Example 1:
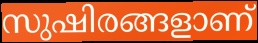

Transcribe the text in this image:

സുഷിരങ്ങളാണ്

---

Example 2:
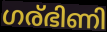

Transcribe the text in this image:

ഗര്ഭിണി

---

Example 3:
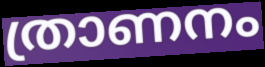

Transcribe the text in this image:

ത്രാണനം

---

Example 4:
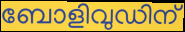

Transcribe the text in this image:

ബോളിവുഡിന്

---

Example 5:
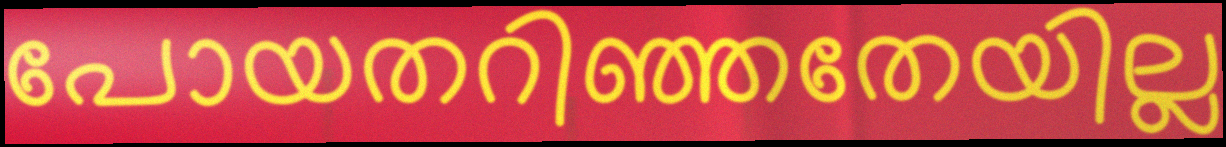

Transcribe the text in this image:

പോയതറിഞ്ഞതേയില്ല